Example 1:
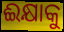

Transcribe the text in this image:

ଈକ୍ଷାକୁ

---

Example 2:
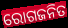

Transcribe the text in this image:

ରୋଗଜନିତ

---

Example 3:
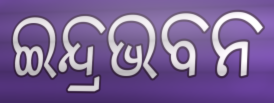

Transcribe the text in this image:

ଇନ୍ଦ୍ରଭବନ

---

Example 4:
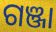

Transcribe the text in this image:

ଗଞ୍ଜା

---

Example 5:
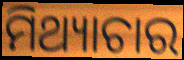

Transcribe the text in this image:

ମିଥ୍ୟାଚାର